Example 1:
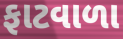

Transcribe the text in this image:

ફાટવાળા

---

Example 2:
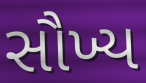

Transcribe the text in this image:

સૌખ્ય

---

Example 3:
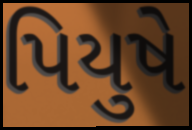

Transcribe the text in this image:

પિયુષે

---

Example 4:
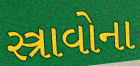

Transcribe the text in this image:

સ્ત્રાવોના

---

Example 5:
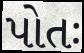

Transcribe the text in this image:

પોતઃ